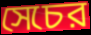
সেচের